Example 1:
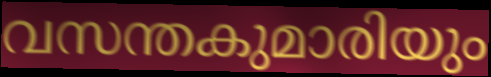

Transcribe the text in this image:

വസന്തകുമാരിയും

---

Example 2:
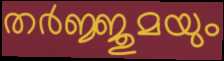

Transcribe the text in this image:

തർജ്ജുമയും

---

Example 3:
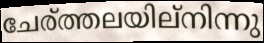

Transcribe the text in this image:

ചേര്ത്തലയില്നിന്നു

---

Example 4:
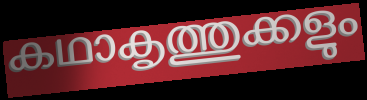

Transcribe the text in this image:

കഥാകൃത്തുക്കളും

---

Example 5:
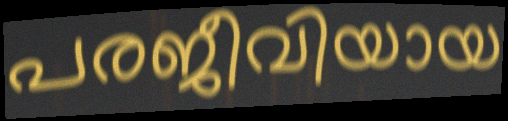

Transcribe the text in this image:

പരജീവിയായ